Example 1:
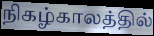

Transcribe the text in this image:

நிகழ்காலத்தில்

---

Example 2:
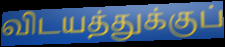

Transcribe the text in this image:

விடயத்துக்குப்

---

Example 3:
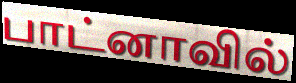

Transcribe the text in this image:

பாட்னாவில்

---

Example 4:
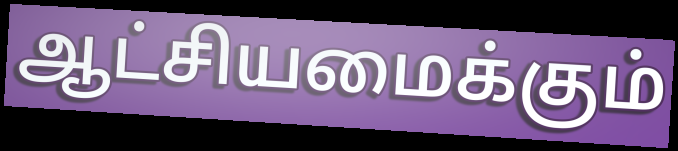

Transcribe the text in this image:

ஆட்சியமைக்கும்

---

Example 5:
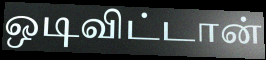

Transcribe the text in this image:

ஒடிவிட்டான்